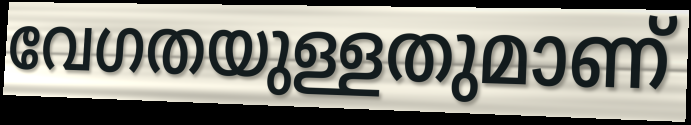
വേഗതയുള്ളതുമാണ്